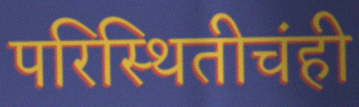
परिस्थितीचंही